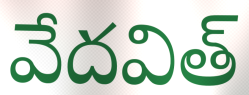
వేదవిత్